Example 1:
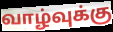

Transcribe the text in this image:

வாழ்வுக்கு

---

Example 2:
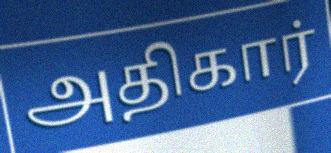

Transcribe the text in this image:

அதிகார்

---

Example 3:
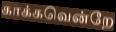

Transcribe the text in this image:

காக்கவென்றே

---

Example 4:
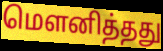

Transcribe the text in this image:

மௌனித்தது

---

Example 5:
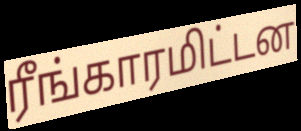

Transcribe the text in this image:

ரீங்காரமிட்டன